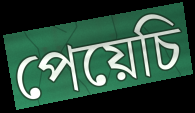
পেয়েচি